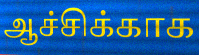
ஆச்சிக்காக